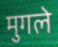
मुगले